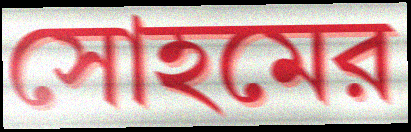
সোহমের